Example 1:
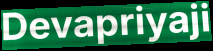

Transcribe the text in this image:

Devapriyaji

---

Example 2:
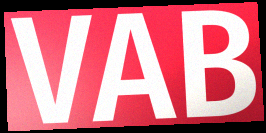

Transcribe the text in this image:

VAB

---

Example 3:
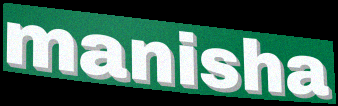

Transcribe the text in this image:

manisha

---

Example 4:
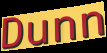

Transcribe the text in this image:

Dunn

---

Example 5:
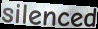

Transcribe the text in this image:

silenced